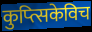
कुप्त्सिकेविच